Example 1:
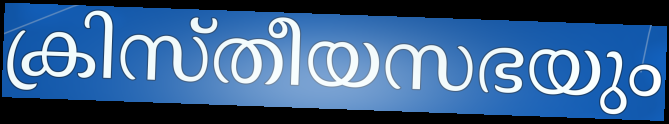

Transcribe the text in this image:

ക്രിസ്തീയസഭയും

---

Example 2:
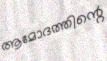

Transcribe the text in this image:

ആമോദത്തിന്റെ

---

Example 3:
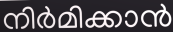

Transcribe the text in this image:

നിർമിക്കാൻ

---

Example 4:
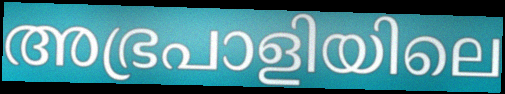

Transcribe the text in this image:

അഭ്രപാളിയിലെ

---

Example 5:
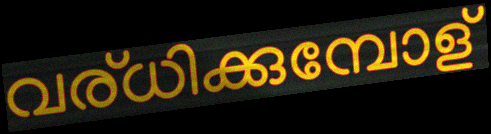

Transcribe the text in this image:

വര്ധിക്കുമ്പോള്